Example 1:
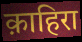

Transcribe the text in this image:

क़ाहिरा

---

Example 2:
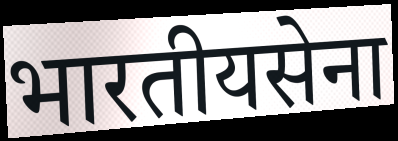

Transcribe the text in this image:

भारतीयसेना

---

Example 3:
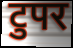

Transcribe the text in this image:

टुपर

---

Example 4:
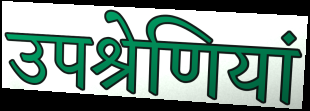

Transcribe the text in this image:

उपश्रेणियां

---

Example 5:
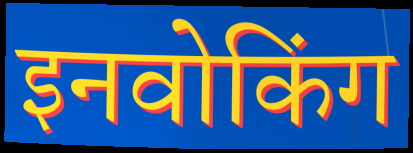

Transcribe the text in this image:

इनवोकिंग